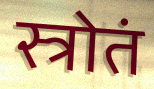
स्त्रोतं